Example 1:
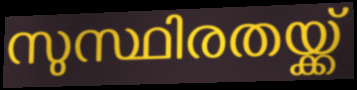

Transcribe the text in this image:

സുസ്ഥിരതയ്ക്ക്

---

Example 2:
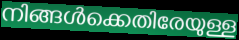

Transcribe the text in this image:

നിങ്ങൾക്കെതിരേയുള്ള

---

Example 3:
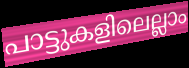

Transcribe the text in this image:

പാട്ടുകളിലെല്ലാം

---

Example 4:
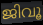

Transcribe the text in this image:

ജിവൂ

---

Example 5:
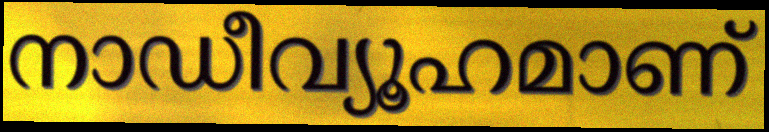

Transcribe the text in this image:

നാഡീവ്യൂഹമാണ്